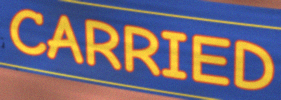
CARRIED